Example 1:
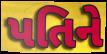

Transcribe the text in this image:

પતિને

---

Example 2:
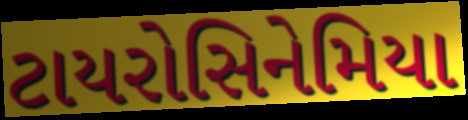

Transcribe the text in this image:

ટાયરોસિનેમિયા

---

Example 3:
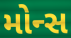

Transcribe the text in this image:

મોન્સ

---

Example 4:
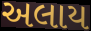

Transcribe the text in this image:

અલાય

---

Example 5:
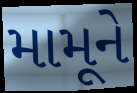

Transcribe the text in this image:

મામૂને